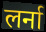
लर्ना